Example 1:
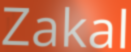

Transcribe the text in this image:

Zakal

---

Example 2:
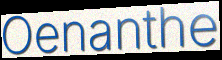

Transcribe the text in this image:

Oenanthe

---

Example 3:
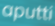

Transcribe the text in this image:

aputti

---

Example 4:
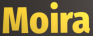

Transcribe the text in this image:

Moira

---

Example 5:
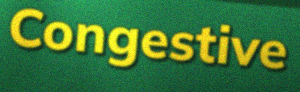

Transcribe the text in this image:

Congestive